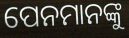
ପେନମାନଙ୍କୁ